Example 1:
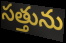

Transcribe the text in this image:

సత్తును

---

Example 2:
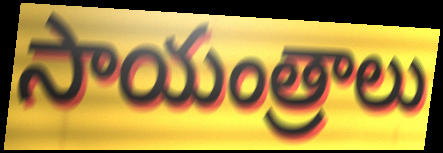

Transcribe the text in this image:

సాయంత్రాలు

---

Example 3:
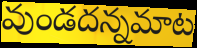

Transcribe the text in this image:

వుండదన్నమాట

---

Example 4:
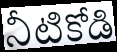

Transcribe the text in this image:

నీటికోడి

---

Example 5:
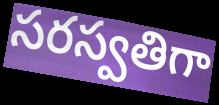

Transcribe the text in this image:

సరస్వతిగా